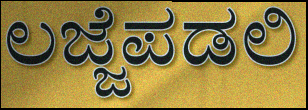
ಲಜ್ಜೆಪಡಲಿ